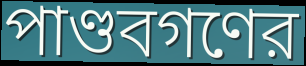
পাণ্ডবগণের